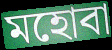
মহোবা